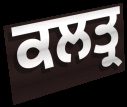
ਕਲਤ੍ਰ